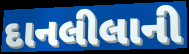
દાનલીલાની